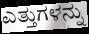
ಎತ್ತುಗಳನ್ನು